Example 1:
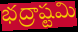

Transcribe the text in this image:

భద్రాష్టమి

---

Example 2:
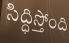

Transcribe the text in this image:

సిద్ధిస్తోంది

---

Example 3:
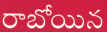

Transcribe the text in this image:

రాబోయిన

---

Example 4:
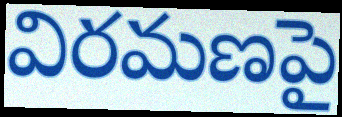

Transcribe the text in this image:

విరమణపై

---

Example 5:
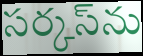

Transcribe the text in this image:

సర్కస్‌ను